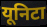
यूनिटा